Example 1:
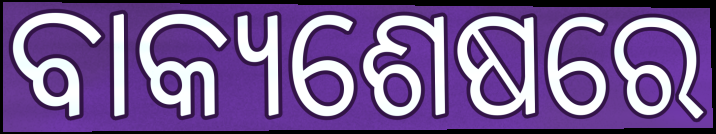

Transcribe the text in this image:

ବାକ୍ୟଶେଷରେ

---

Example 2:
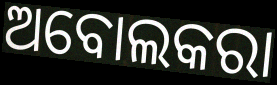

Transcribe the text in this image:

ଅବୋଲକରା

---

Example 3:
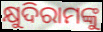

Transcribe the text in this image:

କ୍ଷୁଦିରାମଙ୍କୁ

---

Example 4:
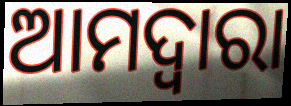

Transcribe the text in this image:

ଆମଦ୍ୱାରା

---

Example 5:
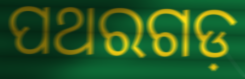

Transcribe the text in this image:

ପଥରଗଡ଼